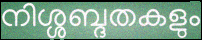
നിശ്ശബ്ദതകളും